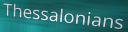
Thessalonians